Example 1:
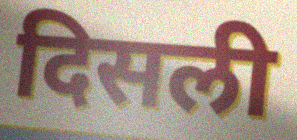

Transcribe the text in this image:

दिसली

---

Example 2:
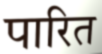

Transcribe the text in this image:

पारित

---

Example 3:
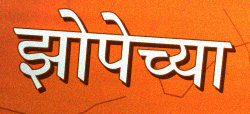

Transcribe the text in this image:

झोपेच्या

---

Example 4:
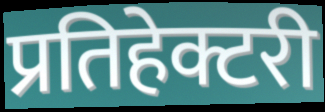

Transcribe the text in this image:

प्रतिहेक्टरी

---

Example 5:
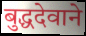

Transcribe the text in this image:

बुद्धदेवाने